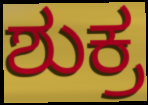
ಶುಕ್ರ